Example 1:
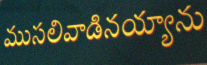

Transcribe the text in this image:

ముసలివాడినయ్యాను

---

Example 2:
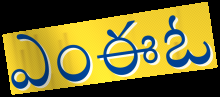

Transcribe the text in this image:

ఎంఈఓ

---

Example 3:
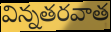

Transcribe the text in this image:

విన్నతరవాత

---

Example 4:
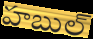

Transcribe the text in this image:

హబుల్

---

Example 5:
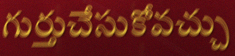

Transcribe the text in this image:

గుర్తుచేసుకోవచ్చు